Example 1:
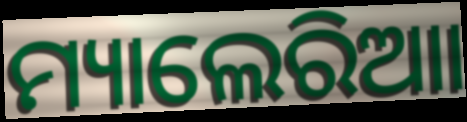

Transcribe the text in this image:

ମ୍ୟାଲେରିଆା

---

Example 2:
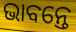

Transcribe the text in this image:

ଭାବନ୍ତେ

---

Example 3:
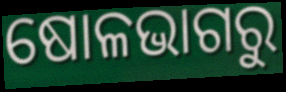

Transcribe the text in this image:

ଷୋଳଭାଗରୁ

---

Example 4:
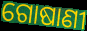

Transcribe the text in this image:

ଗୋଷାଣୀ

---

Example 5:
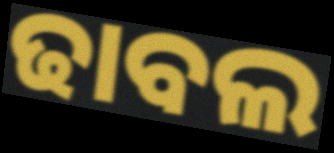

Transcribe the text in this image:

ଢାବଲ